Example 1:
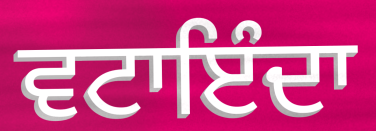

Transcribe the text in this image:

ਵਟਾਇੰਦਾ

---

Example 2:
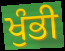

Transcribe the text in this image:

ਖੁੰਭੀ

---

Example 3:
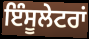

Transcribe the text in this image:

ਇੰਸੂਲੇਟਰਾਂ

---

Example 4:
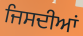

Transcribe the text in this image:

ਜਿਸਦੀਆਂ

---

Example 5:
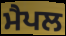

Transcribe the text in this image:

ਮੈਪਲ